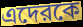
এদেরকে